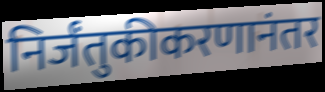
निर्जंतुकीकरणानंतर